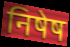
निषेष